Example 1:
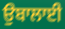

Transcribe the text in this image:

ਉਬਾਲਾਈ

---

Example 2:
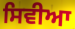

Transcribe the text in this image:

ਸਿਵੀਆ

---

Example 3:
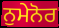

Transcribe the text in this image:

ਨੁਮੇਨੋਰ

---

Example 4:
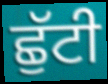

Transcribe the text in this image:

ਛੁੱਟੀ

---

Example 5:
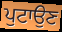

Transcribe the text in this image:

ਪੁਟਾਉਣ